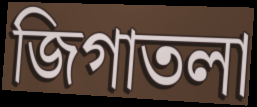
জিগাতলা